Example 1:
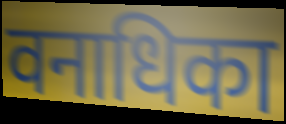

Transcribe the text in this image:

वनाधिका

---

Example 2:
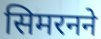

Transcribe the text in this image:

सिमरनने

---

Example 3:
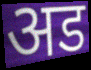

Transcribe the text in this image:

अड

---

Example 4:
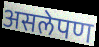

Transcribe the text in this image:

असलेपण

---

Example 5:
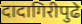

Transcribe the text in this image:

दादागिरीपुढे